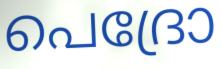
പെദ്രോ